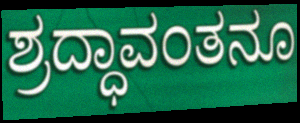
ಶ್ರದ್ಧಾವಂತನೂ